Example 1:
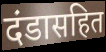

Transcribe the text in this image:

दंडासहित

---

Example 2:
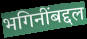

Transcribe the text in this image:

भगिनींबद्दल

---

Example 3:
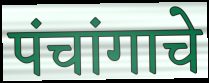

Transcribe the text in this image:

पंचांगाचे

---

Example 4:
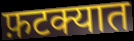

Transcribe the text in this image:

फ़टक्यात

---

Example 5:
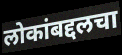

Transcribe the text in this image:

लोकांबद्दलचा